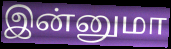
இன்னுமா